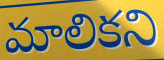
మాలికని